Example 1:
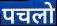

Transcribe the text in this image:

पचलो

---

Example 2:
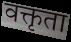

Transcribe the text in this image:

वक्तृता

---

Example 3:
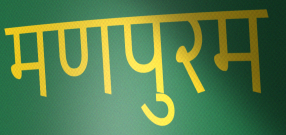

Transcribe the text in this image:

मणपुरम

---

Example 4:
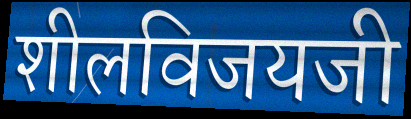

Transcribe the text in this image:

शीलविजयजी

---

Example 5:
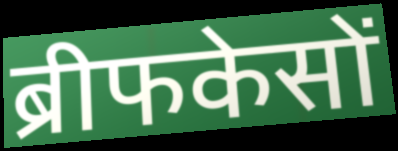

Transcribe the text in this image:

ब्रीफकेसों